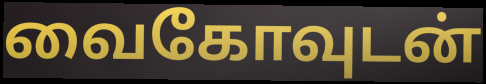
வைகோவுடன்